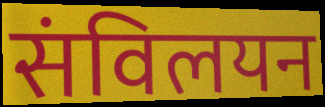
संविलयन